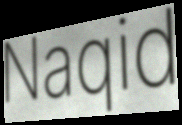
Naqid